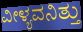
ವೀಳ್ಯವನಿತ್ತು